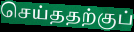
செய்ததற்குப்